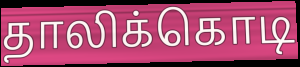
தாலிக்கொடி